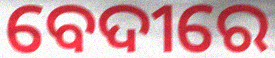
ବେଦୀରେ